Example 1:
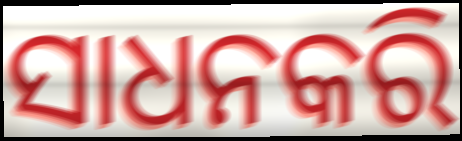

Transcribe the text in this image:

ସାଧନକରି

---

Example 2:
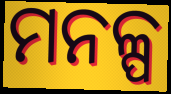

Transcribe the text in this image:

ମନଳ୍ପ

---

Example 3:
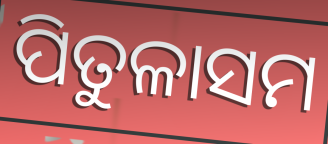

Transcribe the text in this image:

ପିତୁଳାସମ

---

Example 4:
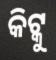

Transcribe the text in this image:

କିଟ୍କୁ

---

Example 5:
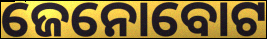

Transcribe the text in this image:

ଜେନୋବୋଟ